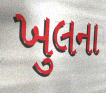
ખુલના